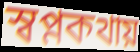
স্বপ্নকথায়